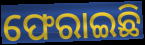
ଫେରାଇଛି